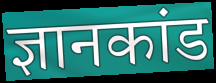
ज्ञानकांड